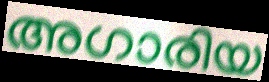
അഗാരിയ